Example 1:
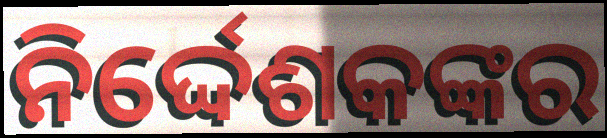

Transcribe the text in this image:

ନିର୍ଦ୍ଦେଶକଙ୍କର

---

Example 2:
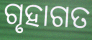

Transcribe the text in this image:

ଗୃହାଗତ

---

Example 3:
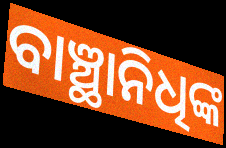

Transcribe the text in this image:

ବାଞ୍ଛାନିଧିଙ୍କ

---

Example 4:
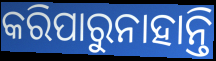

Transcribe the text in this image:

କରିପାରୁନାହାନ୍ତି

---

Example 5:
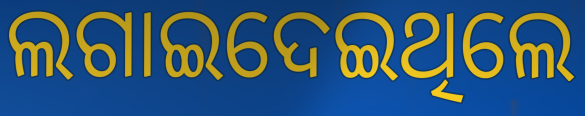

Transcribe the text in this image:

ଲଗାଇଦେଇଥିଲେ